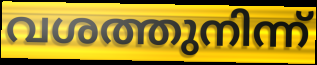
വശത്തുനിന്ന്